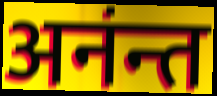
अनंन्त